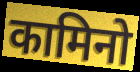
कामिनो